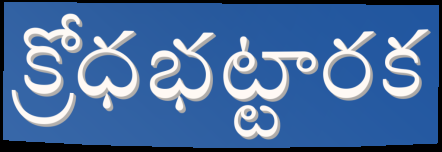
క్రోధభట్టారక